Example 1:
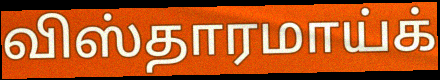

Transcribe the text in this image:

விஸ்தாரமாய்க்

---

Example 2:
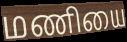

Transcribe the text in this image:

மணியை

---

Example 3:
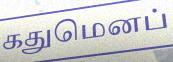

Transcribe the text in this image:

கதுமெனப்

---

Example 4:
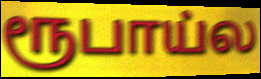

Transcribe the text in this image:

ரூபாய்ல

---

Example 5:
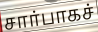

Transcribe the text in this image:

சார்பாகச்